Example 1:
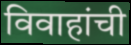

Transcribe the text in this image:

विवाहांची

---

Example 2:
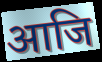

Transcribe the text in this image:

आजि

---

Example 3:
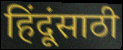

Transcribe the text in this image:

हिंदूंसाठी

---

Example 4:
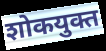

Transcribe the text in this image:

शोकयुक्त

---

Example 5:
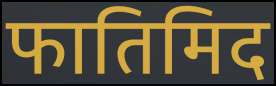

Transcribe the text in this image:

फातिमिद